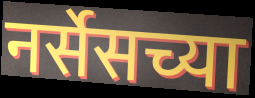
नर्सेसच्या